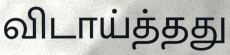
விடாய்த்தது